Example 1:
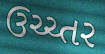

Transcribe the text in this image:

ઉચ્ચ્તર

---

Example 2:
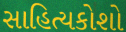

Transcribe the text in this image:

સાહિત્યકોશો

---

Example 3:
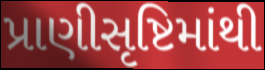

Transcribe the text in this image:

પ્રાણીસૃષ્ટિમાંથી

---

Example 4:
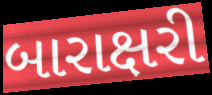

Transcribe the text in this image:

બારાક્ષરી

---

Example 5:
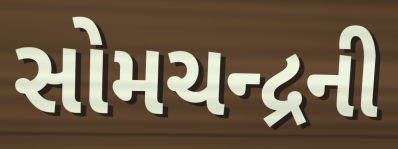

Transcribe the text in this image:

સોમચન્દ્રની